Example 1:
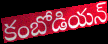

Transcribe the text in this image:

కంబోడియన్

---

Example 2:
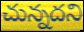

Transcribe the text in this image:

చున్నదని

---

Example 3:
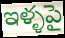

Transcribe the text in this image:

ఇళ్ళపై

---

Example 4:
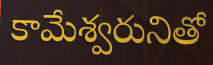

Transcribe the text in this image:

కామేశ్వరునితో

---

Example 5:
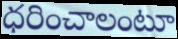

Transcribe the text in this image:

ధరించాలంటూ